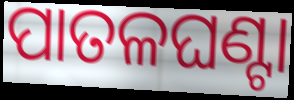
ପାତଳଘଣ୍ଟା